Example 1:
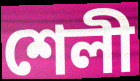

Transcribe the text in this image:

শেলী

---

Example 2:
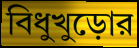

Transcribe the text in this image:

বিধুখুড়োর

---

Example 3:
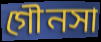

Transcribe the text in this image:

গৌনসা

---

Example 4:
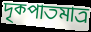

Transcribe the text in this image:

দৃক্পাতমাত্র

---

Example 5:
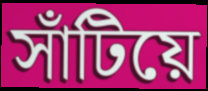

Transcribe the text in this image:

সাঁটিয়ে